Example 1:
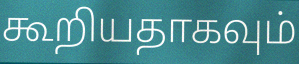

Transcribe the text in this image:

கூறியதாகவும்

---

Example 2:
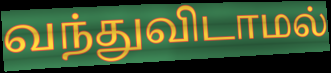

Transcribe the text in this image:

வந்துவிடாமல்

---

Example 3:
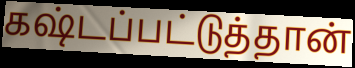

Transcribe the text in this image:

கஷ்டப்பட்டுத்தான்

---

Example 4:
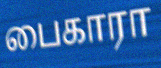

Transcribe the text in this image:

பைகாரா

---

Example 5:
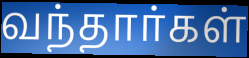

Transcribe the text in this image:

வந்தார்கள்